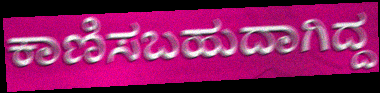
ಕಾಣಿಸಬಹುದಾಗಿದ್ದ